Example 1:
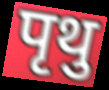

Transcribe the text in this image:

पृथु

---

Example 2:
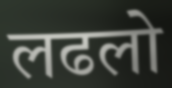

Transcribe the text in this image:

लढलो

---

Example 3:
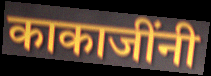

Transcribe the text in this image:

काकाजींनी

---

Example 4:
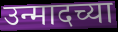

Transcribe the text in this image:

उन्मादच्या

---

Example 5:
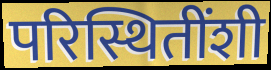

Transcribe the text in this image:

परिस्थितींशी